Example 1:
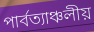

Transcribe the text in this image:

পার্বত্যাঞ্চলীয়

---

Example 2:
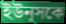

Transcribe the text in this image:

ইউনূসকে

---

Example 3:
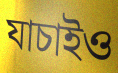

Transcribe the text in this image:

যাচাইও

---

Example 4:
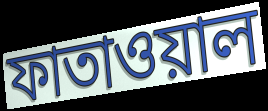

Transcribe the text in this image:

ফাতাওয়াল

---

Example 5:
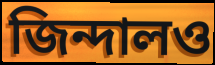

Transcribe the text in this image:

জিন্দালও